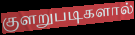
குளறுபடிகளால்